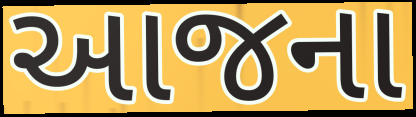
આજના